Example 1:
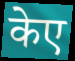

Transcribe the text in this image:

केए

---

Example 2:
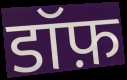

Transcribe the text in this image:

डॉफ़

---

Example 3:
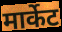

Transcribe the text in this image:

मार्केट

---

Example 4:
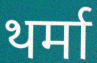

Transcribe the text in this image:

थर्मा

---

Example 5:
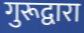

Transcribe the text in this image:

गुरूद्वारा